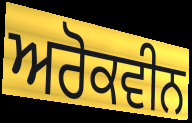
ਅਰੋਕਵੀਨ